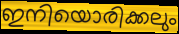
ഇനിയൊരിക്കലും